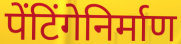
पेंटिंगेनिर्माण